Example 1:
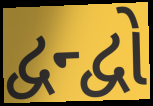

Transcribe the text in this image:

દ્વન્દ્વો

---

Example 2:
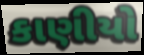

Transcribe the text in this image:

કાણીયો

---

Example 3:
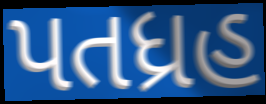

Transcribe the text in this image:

પતધ્રહ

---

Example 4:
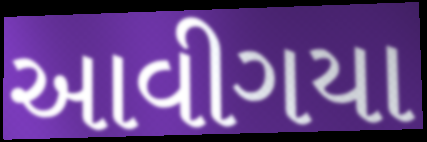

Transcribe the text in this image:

આવીગયા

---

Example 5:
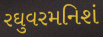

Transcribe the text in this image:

રઘુવરમનિશં